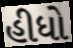
હીધો